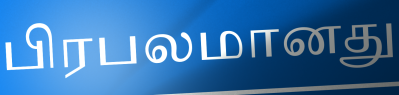
பிரபலமானது